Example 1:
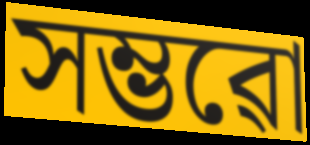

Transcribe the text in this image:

সম্ভৱো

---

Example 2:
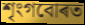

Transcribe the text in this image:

শৃংগবোৰত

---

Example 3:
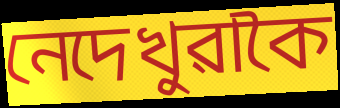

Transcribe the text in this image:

নেদেখুৱাকৈ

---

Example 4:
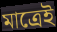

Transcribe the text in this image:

মাত্ৰেই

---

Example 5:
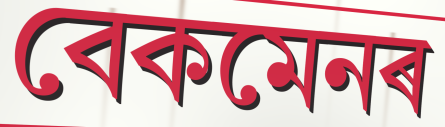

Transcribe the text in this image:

বেকমেনৰ